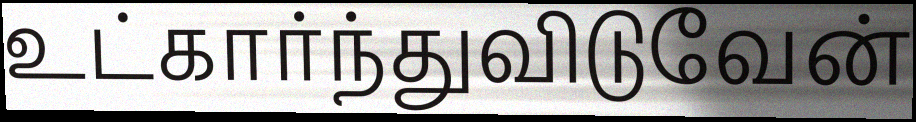
உட்கார்ந்துவிடுவேன்